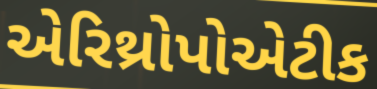
એરિથ્રોપોએટીક